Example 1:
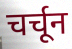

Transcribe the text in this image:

चर्चून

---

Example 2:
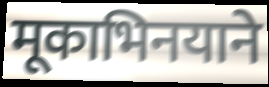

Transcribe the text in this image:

मूकाभिनयाने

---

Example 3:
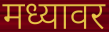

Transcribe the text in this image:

मध्यावर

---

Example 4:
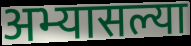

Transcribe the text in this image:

अभ्यासल्या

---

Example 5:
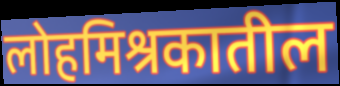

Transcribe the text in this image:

लोहमिश्रकातील